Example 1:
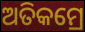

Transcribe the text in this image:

ଅତିକମ୍ରେ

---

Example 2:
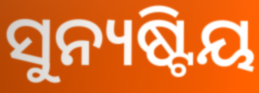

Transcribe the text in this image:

ସୁନ୍ୟଷ୍ଟିୟ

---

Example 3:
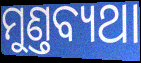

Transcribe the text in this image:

ମୁଣ୍ତବ୍ୟଥା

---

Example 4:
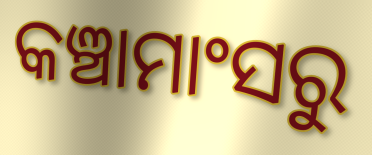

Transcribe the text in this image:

କଞ୍ଚାମାଂସରୁ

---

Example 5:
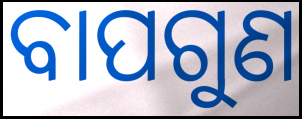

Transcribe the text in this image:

ବାପଗୁଣ